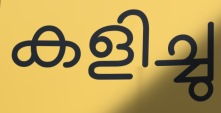
കളിച്ചു